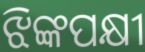
ଝିଙ୍କପକ୍ଷୀ